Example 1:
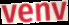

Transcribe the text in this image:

venv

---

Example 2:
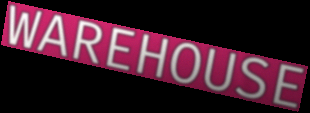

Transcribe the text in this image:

WAREHOUSE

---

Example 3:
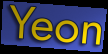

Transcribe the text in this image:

Yeon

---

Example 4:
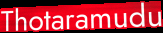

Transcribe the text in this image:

Thotaramudu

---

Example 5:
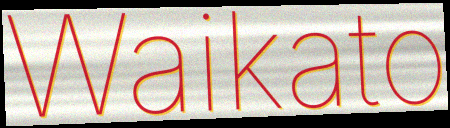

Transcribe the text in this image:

Waikato